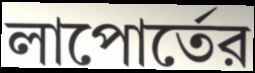
লাপোর্তের